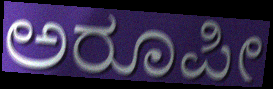
ಅರೂಪೀ